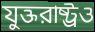
যুক্তরাষ্ট্রও